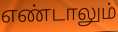
எண்டாலும்